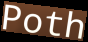
Poth